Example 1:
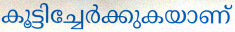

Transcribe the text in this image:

കൂട്ടിച്ചേർക്കുകയാണ്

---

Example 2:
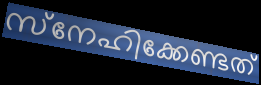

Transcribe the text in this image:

സ്‌നേഹിക്കേണ്ടത്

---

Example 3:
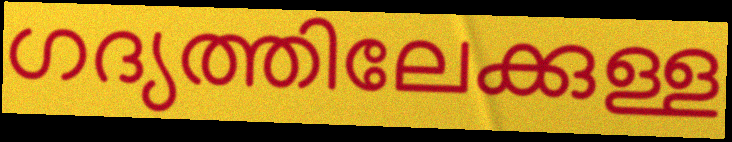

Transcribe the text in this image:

ഗദ്യത്തിലേക്കുള്ള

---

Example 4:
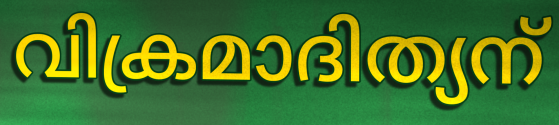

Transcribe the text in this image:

വിക്രമാദിത്യന്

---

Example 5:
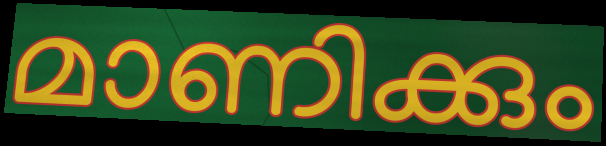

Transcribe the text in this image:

മാണിക്കും